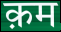
क़म